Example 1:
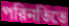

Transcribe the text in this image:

পরিনতিতে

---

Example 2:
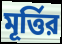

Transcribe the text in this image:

মূর্ত্তির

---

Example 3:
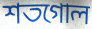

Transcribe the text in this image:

শতগোল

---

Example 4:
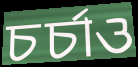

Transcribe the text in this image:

চর্চাও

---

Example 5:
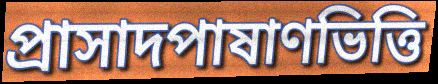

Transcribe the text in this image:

প্রাসাদপাষাণভিত্তি